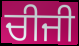
ਚੀਜੀ